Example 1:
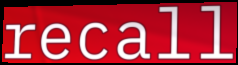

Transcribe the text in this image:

recall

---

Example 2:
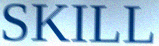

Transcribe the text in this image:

SKILL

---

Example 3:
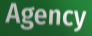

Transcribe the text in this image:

Agency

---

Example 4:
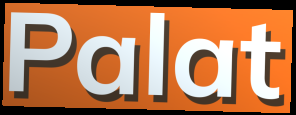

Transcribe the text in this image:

Palat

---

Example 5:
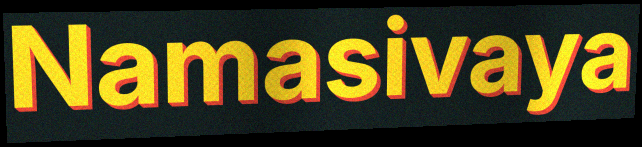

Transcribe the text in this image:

Namasivaya